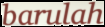
barulah